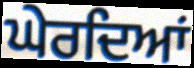
ਘੇਰਦਿਆਂ